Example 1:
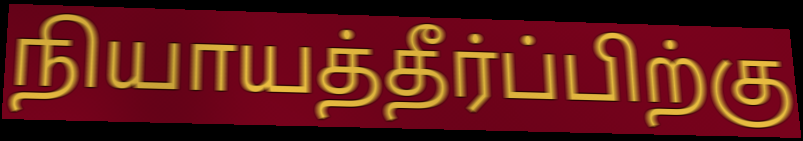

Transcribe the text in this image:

நியாயத்தீர்ப்பிற்கு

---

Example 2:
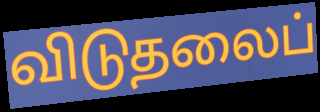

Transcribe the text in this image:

விடுதலைப்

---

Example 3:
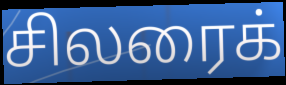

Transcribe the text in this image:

சிலரைக்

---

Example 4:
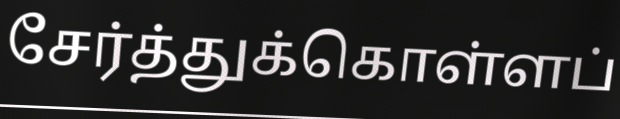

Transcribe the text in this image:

சேர்த்துக்கொள்ளப்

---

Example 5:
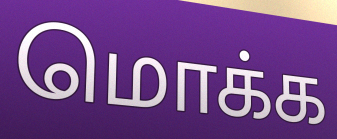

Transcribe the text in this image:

மொக்க